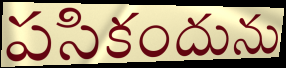
పసికందును